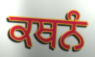
ਕਥਨੰ